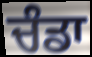
ਚੰਡਾ